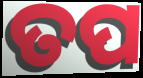
ତପ